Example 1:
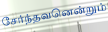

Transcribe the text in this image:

சேர்ந்தவனென்றும்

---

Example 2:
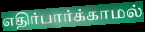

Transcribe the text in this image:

எதிர்பார்க்காமல்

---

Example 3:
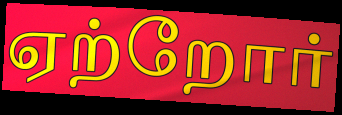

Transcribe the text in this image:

ஏற்றோர்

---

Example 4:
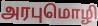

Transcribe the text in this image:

அரபுமொழி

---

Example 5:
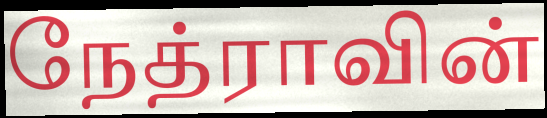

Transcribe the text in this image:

நேத்ராவின்